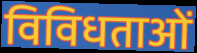
विविधताओं